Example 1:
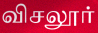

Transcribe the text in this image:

விசலூர்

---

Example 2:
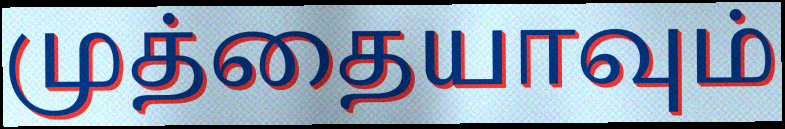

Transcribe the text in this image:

முத்தையாவும்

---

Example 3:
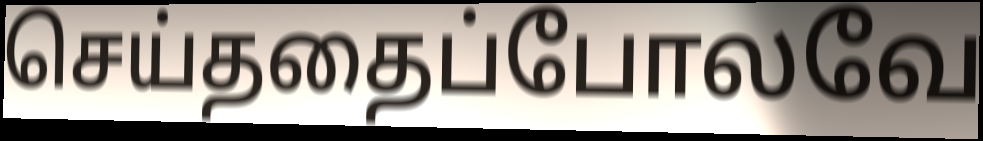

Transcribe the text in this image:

செய்ததைப்போலவே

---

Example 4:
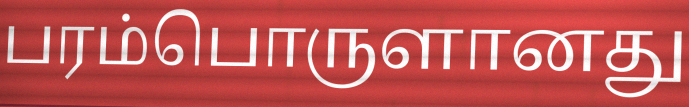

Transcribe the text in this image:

பரம்பொருளானது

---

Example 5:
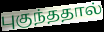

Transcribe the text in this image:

புகுந்ததால்